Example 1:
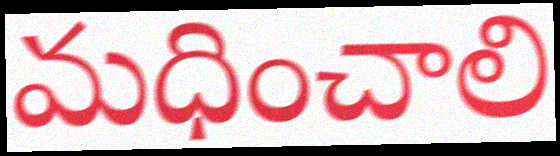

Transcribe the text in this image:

మధించాలి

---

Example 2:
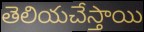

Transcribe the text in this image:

తెలియచేస్తాయి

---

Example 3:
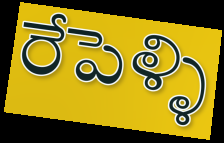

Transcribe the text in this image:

రేపెళ్ళి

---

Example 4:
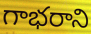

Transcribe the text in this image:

గాభరాని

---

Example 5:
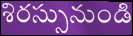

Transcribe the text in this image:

శిరస్సునుండి